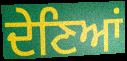
ਦੇਣਿਆਂ